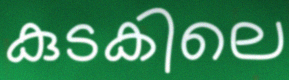
കുടകിലെ